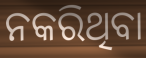
ନକରିଥିବା